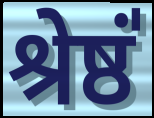
श्रेष्ठं॑